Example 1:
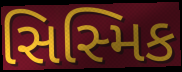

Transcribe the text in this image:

સિસ્મિક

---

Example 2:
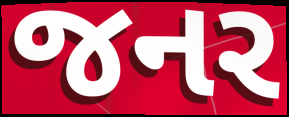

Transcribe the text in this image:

જનર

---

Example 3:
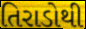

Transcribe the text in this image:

તિરાડોથી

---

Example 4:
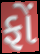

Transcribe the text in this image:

ફોં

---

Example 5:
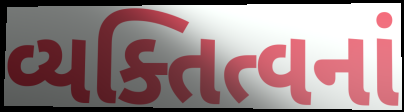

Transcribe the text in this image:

વ્યક્તિત્વનાં